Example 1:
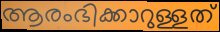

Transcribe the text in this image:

ആരംഭിക്കാറുള്ളത്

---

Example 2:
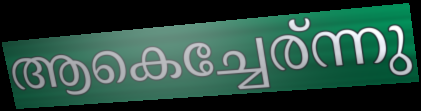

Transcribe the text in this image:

ആകെച്ചേര്ന്നു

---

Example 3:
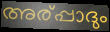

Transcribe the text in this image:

അര്പ്പാദും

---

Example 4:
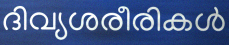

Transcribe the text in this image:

ദിവ്യശരീരികൾ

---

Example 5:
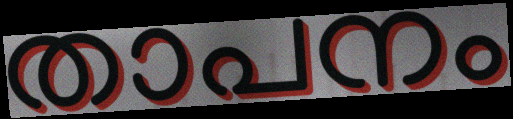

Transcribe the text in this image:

താപനം